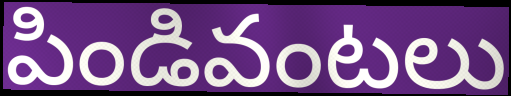
పిండివంటలు